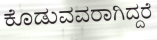
ಕೊಡುವವರಾಗಿದ್ದರೆ